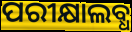
ପରୀକ୍ଷାଲବ୍ଧ